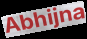
Abhijna